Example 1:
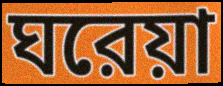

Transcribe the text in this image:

ঘরেয়া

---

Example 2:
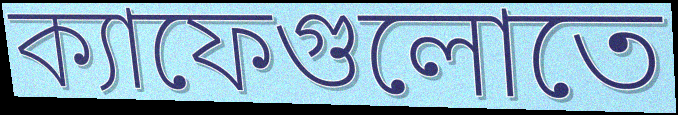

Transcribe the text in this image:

ক্যাফেগুলোতে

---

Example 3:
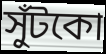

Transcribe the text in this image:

সুঁটকো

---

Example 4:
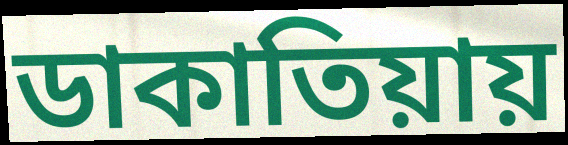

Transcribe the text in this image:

ডাকাতিয়ায়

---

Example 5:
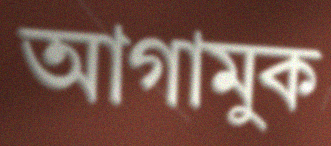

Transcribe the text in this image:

আগামুক